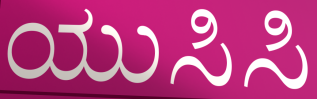
ಯುಸಿಸಿ